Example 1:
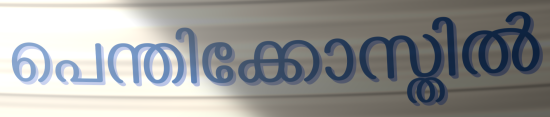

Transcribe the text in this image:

പെന്തിക്കോസ്തിൽ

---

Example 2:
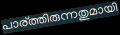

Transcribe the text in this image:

പാര്ത്തിരുന്നതുമായി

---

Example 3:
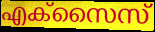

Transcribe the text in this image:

എക്‌സൈസ്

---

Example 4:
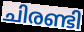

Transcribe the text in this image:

ചിരണ്ടി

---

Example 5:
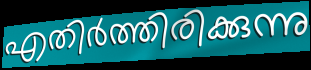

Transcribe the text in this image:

എതിർത്തിരിക്കുന്നു